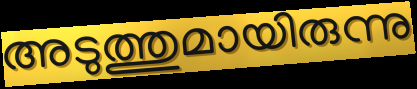
അടുത്തുമായിരുന്നു